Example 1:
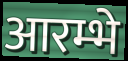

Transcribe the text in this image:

आरम्भे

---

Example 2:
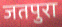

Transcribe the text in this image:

जतपुरा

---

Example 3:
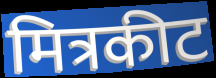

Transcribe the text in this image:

मित्रकीट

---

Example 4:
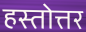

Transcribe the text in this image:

हस्तोत्तर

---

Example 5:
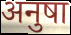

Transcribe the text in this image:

अनुषा